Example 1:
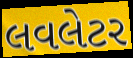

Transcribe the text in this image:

લવલેટર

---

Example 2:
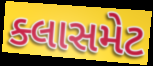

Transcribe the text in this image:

ક્લાસમેટ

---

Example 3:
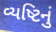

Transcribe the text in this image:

વ્યષ્ટિનું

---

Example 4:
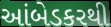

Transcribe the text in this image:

આંબેડકરથી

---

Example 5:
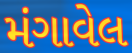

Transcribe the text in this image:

મંગાવેલ